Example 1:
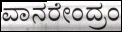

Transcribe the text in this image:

ವಾನರೇಂದ್ರಂ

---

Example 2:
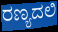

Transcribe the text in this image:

ರಣ್ಯದಲಿ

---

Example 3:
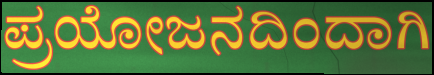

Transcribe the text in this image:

ಪ್ರಯೋಜನದಿಂದಾಗಿ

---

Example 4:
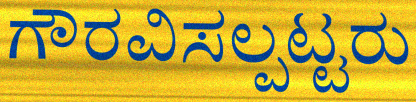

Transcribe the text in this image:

ಗೌರವಿಸಲ್ಪಟ್ಟರು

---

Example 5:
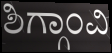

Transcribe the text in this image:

ಶಿಗ್ಗಾಂವಿ